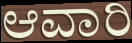
ಆವಾರಿ